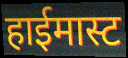
हाईमास्ट